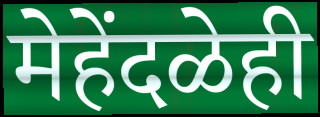
मेहेंदळेही